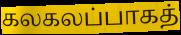
கலகலப்பாகத்